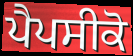
ਪੈਪਸੀਕੋ